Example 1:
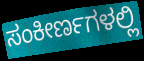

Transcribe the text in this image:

ಸಂಕೀರ್ಣಗಳಲ್ಲಿ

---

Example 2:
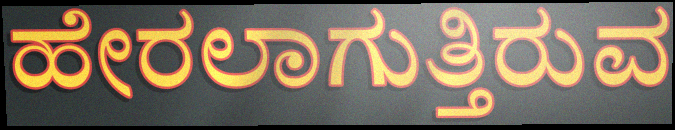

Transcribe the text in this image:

ಹೇರಲಾಗುತ್ತಿರುವ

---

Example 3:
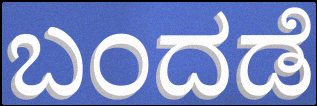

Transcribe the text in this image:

ಬಂದಡೆ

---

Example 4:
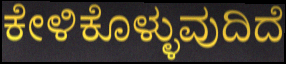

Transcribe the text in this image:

ಕೇಳಿಕೊಳ್ಳುವುದಿದೆ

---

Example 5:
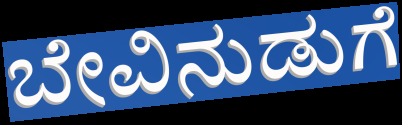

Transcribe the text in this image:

ಬೇವಿನುಡುಗೆ